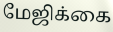
மேஜிக்கை